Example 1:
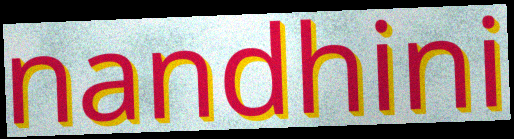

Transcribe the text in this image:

nandhini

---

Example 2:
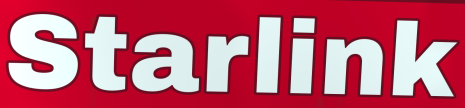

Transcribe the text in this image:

Starlink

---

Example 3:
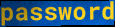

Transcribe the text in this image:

password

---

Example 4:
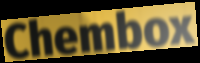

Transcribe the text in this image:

Chembox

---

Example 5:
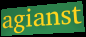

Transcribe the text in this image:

agianst